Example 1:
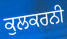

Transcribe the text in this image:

ਕੁਲਕਰਨੀ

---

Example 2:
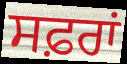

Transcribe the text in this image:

ਸਫ਼ਰਾਂ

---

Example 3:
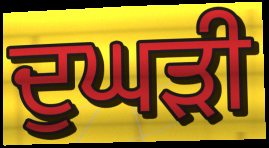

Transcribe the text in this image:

ਦੁਘੜੀ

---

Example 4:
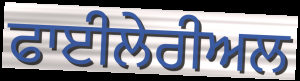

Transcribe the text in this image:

ਫਾਈਲੇਰੀਅਲ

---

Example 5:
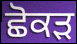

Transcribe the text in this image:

ਛੋਕੜ